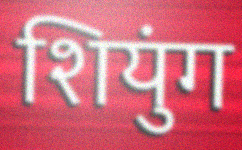
शियुंग